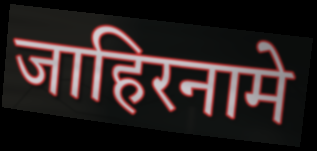
जाहिरनामे